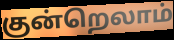
குன்றெலாம்